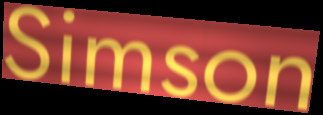
Simson